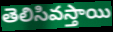
తెలిసివస్తాయి